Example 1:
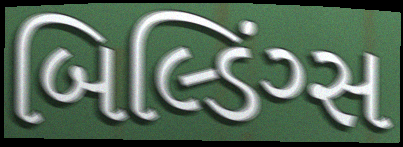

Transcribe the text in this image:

બિલ્ડિંગ્સ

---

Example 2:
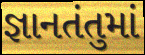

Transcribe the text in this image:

જ્ઞાનતંતુમાં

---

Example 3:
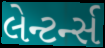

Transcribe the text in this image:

લેન્ટર્ન્સ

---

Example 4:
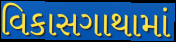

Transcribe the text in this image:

વિકાસગાથામાં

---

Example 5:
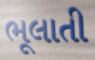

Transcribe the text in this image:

ભૂલાતી